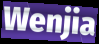
Wenjia